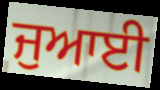
ਜੁਆਈ